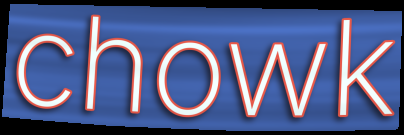
chowk